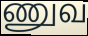
ணுவ